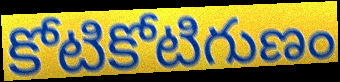
కోటికోటిగుణం